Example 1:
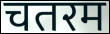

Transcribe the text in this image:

चतरम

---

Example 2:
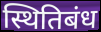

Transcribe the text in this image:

स्थितिबंध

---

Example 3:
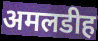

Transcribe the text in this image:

अमलडीह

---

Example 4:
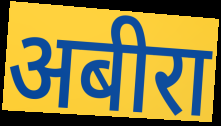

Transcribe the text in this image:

अबीरा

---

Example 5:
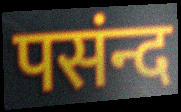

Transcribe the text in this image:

पसंन्द